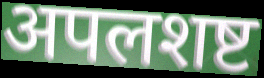
अपलशष्ट